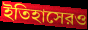
ইতিহাসেরও